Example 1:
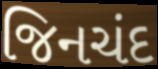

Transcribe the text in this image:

જિનચંદ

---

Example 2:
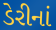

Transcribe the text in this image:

ડેરીનાં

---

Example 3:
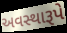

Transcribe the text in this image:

અવસ્થારૂપે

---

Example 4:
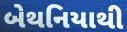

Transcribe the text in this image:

બેથનિયાથી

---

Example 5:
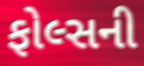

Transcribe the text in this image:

ફોલ્સની